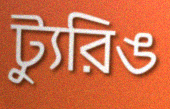
ট্যুরিঙ